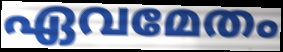
ഏവമേതം